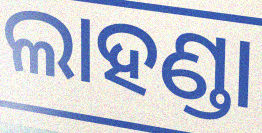
ଲାହଣ୍ଡା